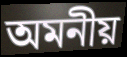
অমনীয়